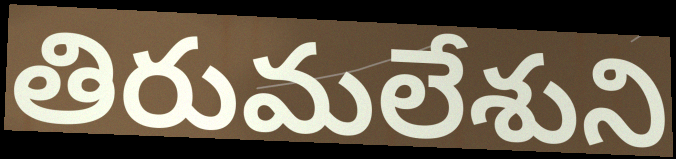
తిరుమలేశుని